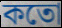
কতো